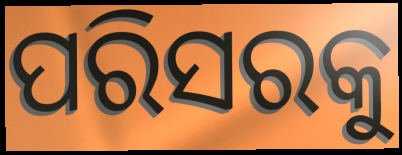
ପରିସରକୁ